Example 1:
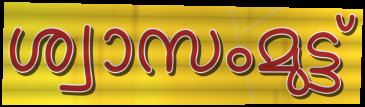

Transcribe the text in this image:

ശ്വാസംമുട്ട്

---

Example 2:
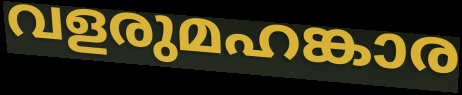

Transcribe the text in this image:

വളരുമഹങ്കാര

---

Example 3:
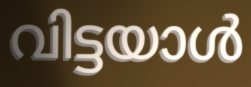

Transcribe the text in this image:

വിട്ടയാൾ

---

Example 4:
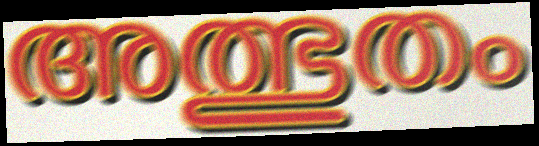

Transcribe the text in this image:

അത്ഭുതം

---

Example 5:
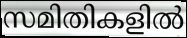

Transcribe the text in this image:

സമിതികളിൽ